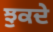
ਝੁਕਦੇ